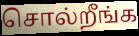
சொல்றீங்க